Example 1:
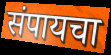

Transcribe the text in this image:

संपायचा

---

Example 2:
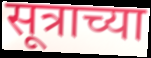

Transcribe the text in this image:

सूत्राच्या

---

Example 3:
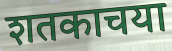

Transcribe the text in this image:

शतकाचया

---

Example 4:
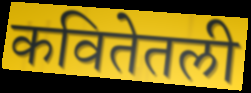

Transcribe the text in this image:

कवितेतली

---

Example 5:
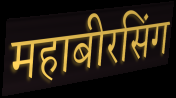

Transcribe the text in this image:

महाबीरसिंग